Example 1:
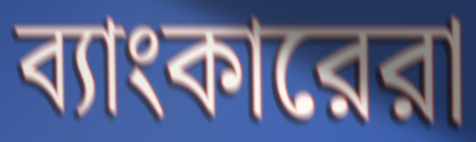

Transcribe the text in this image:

ব্যাংকারেরা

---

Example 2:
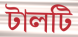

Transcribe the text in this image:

টালটি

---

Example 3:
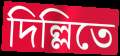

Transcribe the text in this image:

দিল্লিতে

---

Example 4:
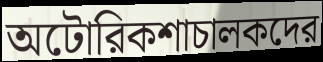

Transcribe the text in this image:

অটোরিকশাচালকদের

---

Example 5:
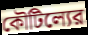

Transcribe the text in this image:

কৌটিল্যের